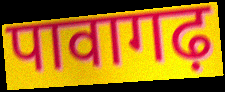
पावागढ़